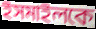
ইসমাইলকে